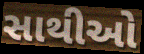
સાથીઓ